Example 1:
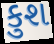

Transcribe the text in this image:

કુશ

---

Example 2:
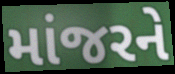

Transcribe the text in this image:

માંજરને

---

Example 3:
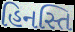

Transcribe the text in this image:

હિનસ્તિ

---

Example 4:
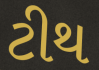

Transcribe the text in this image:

ટીથ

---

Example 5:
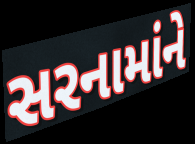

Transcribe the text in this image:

સરનામાંને